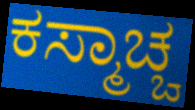
ಕಸ್ಮಾಚ್ಚ